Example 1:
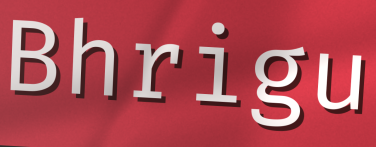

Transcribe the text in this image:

Bhrigu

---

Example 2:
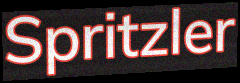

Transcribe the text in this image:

Spritzler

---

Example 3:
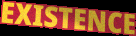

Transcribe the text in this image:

EXISTENCE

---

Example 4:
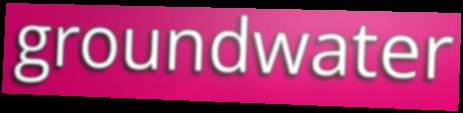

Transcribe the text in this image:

groundwater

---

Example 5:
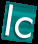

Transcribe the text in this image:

Ic